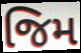
જિમ